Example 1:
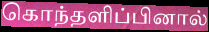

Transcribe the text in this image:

கொந்தளிப்பினால்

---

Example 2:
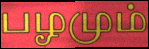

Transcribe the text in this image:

பழமும்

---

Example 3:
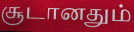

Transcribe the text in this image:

சூடானதும்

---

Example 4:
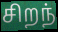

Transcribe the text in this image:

சிறந்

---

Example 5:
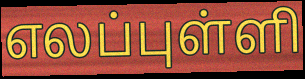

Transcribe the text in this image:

எலப்புள்ளி